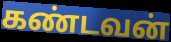
கண்டவன்